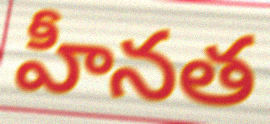
హీనత